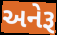
અનેરૂ